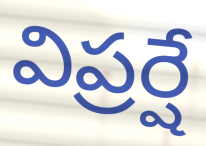
విప్రర్షే